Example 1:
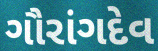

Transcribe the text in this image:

ગૌરાંગદેવ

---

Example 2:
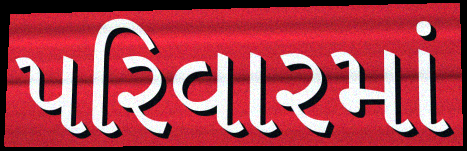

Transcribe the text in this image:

પરિવારમાં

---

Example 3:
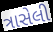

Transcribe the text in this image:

ત્રાસેલી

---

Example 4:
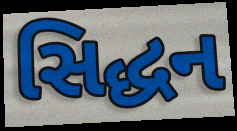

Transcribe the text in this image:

સિદ્ધન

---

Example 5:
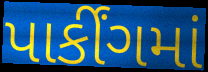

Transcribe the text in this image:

પાર્કીંગમાં